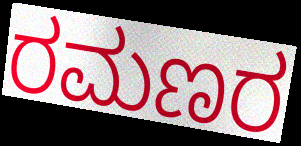
ರಮಣರ